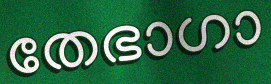
തേഭാഗാ